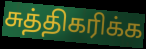
சுத்திகரிக்க